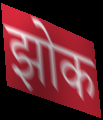
झोक